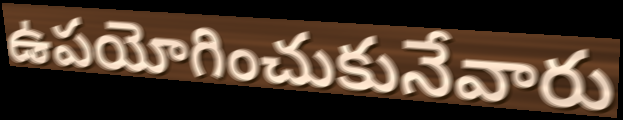
ఉపయోగించుకునేవారు